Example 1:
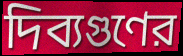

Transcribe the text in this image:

দিব্যগুণের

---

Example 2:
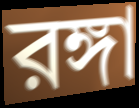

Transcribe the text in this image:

রঙ্গা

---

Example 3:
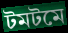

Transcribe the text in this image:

টমটমে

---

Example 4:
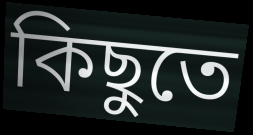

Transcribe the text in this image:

কিছুতে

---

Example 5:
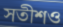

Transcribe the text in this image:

সতীশও